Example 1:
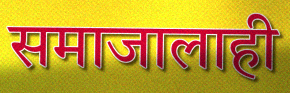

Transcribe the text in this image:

समाजालाही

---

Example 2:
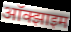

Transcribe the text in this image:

ऑक्झाइम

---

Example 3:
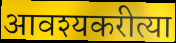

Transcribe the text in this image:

आवश्यकरीत्या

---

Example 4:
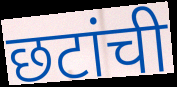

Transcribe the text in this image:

छटांची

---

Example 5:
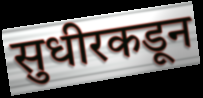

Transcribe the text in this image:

सुधीरकडून